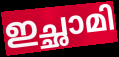
ഇച്ഛാമി